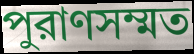
পুরাণসম্মত